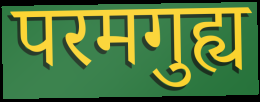
परमगुह्य